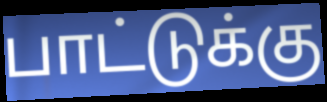
பாட்டுக்கு